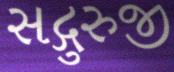
સદ્ગુરુજી